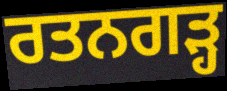
ਰਤਨਗੜ੍ਹ